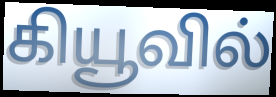
கியூவில்